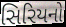
સિરિયનો